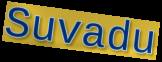
Suvadu